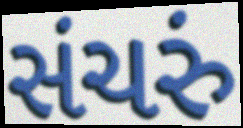
સંચરું